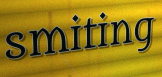
smiting